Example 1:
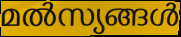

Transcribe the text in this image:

മൽസ്യങ്ങൾ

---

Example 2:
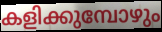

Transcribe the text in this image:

കളിക്കുമ്പോഴും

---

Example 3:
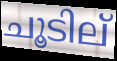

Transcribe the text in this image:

ചൂടില്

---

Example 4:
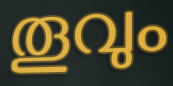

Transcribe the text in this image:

തൂവും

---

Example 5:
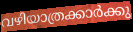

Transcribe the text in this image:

വഴിയാത്രക്കാർക്കു